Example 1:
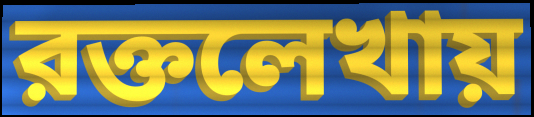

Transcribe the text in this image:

রক্তলেখায়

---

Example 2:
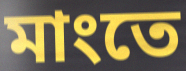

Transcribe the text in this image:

মাংতে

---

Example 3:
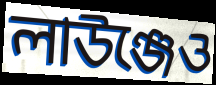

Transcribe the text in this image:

লাউঞ্জেও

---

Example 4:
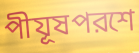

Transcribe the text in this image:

পীযূষপরশে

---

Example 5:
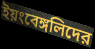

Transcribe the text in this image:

ইয়ংবেঙ্গলিদের